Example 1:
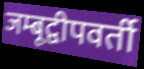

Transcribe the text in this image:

जम्बूद्वीपवर्ती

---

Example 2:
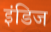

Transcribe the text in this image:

इंडिज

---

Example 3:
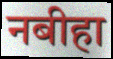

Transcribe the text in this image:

नबीहा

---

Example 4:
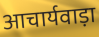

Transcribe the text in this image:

आचार्यवाड़ा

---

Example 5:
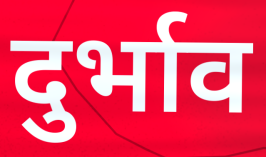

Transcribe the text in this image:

दुर्भाव